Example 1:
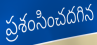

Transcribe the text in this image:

ప్రశంసించదగిన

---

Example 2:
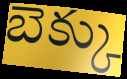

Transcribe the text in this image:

బెక్కు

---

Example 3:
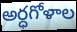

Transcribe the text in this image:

అర్ధగోళాల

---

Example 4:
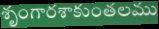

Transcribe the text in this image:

శృంగారశాకుంతలము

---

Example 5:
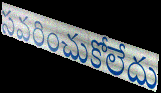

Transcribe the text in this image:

సవరించుకోలేదు